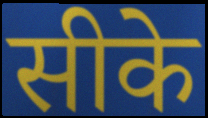
सीके